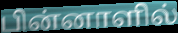
பின்னாளில்